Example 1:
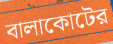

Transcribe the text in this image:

বালাকোটের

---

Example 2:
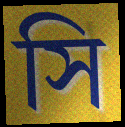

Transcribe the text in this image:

সি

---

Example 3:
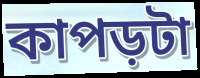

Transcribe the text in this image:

কাপড়টা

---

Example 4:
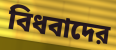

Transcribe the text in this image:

বিধবাদের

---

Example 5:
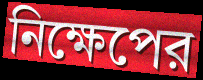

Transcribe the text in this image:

নিক্ষেপের